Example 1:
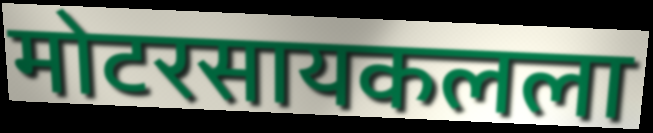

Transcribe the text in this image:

मोटरसायकलला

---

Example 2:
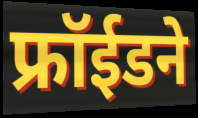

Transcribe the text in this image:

फ्रॉईडने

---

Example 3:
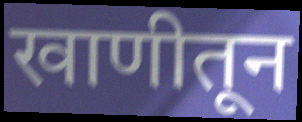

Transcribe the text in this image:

खाणीतून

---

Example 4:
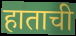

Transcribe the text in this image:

हाताची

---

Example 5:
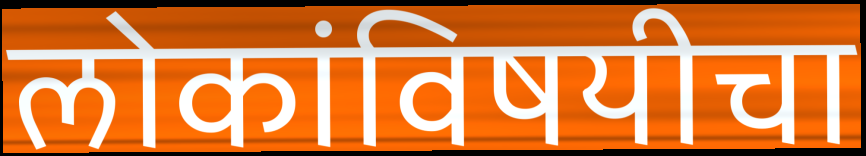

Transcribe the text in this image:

लोकांविषयीचा